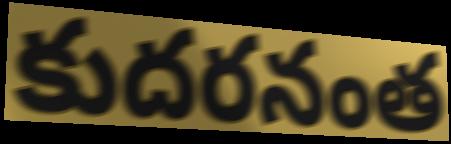
కుదరనంత